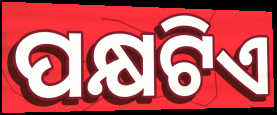
ପକ୍ଷଟିଏ